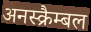
अनस्क्रैम्बल